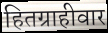
हितग्राहीवार